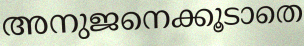
അനുജനെക്കൂടാതെ